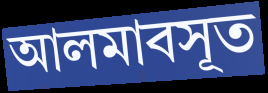
আলমাবসূত